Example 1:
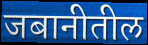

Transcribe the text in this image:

जबानीतील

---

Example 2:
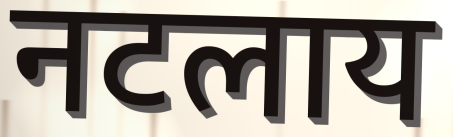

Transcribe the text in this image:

नटलाय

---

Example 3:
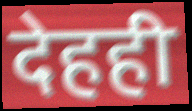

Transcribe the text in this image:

देहही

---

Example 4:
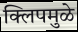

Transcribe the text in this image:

क्लिपमुळे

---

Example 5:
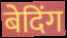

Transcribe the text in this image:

बेदिंग